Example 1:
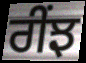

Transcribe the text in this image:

ਰੀਂਝ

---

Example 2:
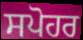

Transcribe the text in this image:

ਸਪੋਹਰ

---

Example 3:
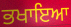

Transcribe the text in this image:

ਭਖਾਇਆ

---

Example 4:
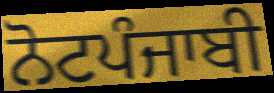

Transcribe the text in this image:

ਨੋਟਪੰਜਾਬੀ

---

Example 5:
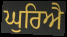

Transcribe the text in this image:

ਘੁਰਿਐ